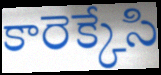
కారెక్కేసి